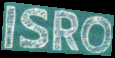
ISRO